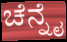
ಚೆನ್ನೈ